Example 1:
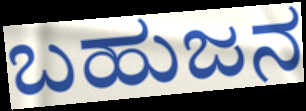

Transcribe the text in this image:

ಬಹುಜನ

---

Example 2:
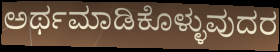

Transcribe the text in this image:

ಅರ್ಥಮಾಡಿಕೊಳ್ಳುವುದರ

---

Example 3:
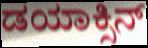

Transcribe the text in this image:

ಡಯಾಕ್ಸಿನ್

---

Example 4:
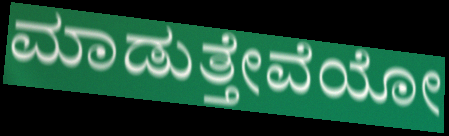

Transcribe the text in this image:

ಮಾಡುತ್ತೇವೆಯೋ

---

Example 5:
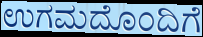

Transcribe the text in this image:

ಉಗಮದೊಂದಿಗೆ